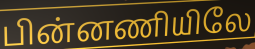
பின்னணியிலே